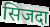
सिजदा